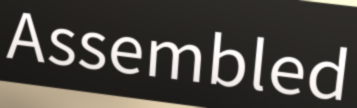
Assembled